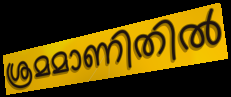
ശ്രമമാണിതിൽ